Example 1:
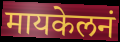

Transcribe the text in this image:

मायकेलनं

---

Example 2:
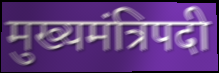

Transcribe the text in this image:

मुख्यमंत्रिपदी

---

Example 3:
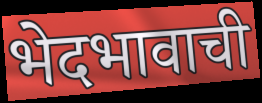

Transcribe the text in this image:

भेदभावाची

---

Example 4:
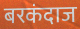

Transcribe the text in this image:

बरकंदाज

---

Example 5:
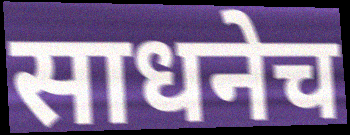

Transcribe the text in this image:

साधनेच